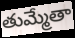
తుమ్మేతా